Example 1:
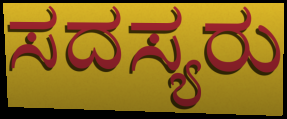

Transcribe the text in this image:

ಸದಸ್ಯರು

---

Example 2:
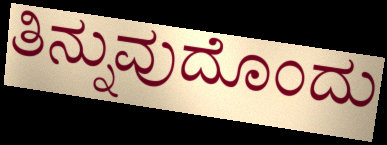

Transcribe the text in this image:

ತಿನ್ನುವುದೊಂದು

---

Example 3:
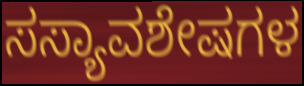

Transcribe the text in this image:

ಸಸ್ಯಾವಶೇಷಗಳ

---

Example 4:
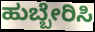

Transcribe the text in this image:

ಹುಬ್ಬೇರಿಸಿ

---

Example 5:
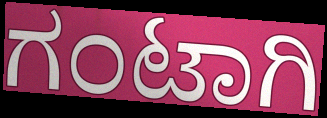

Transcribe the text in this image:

ಗಂಟಾಗಿ